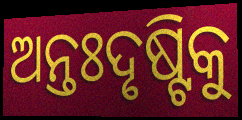
ଅନ୍ତଃଦୃଷ୍ଟିକୁ